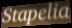
Stapelia